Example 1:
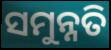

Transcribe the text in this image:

ସମୁନ୍ନତି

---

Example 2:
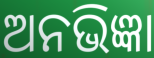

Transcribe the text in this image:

ଅନଭିଜ୍ଞା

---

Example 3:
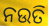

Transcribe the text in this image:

ନଉତି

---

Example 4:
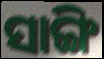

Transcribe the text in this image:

ସାଙ୍ଗି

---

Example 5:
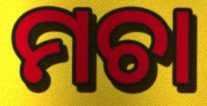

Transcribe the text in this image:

ମଚା